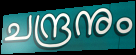
ചന്ദ്രനും